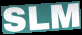
SLM